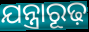
ଯନ୍ତ୍ରାରୂଢ଼